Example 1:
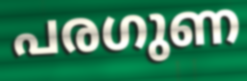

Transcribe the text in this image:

പരഗുണ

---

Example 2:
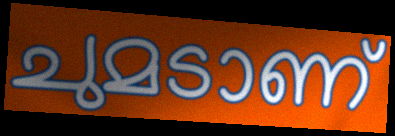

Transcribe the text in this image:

ചുമടാണ്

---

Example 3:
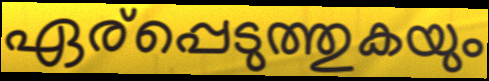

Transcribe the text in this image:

ഏര്പ്പെടുത്തുകയും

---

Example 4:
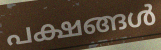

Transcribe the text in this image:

പക്ഷങ്ങൾ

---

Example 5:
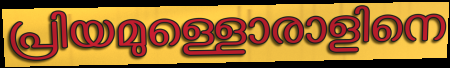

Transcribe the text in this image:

പ്രിയമുള്ളൊരാളിനെ